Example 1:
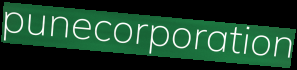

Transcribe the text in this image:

punecorporation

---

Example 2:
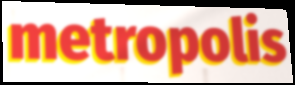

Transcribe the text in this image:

metropolis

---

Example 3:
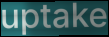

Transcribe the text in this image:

uptake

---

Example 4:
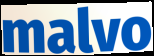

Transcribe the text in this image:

malvo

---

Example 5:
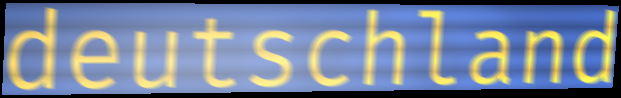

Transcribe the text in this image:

deutschland